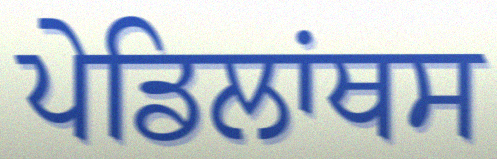
ਪੇਡਿਲਾਂਥਸ